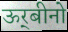
ऊर्बीनो